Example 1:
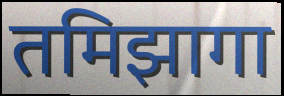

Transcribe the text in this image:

तमिझागा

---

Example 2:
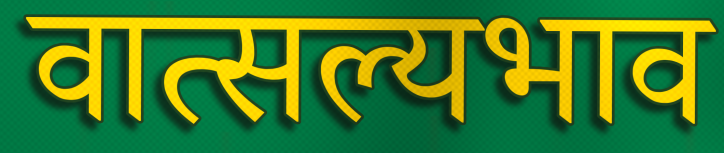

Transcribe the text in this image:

वात्सल्यभाव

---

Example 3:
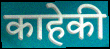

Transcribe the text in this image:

काहेकी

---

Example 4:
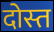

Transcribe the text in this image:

दोस्‍त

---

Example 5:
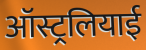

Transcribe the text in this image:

ऑस्ट्रलियाई